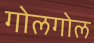
गोलगोल